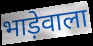
भाड़ेवाला